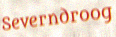
Severndroog